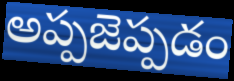
అప్పజెప్పడం